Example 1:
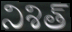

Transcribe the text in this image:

నిశిత్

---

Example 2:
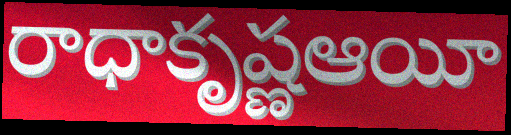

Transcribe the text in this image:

రాధాకృష్ణఆయీ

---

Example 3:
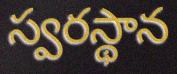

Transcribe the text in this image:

స్వరస్థాన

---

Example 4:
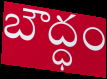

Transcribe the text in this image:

బౌద్ధం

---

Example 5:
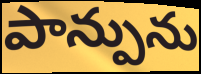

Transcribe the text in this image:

పాన్పును